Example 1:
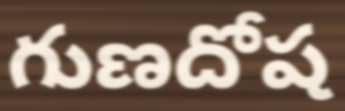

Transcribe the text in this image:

గుణదోష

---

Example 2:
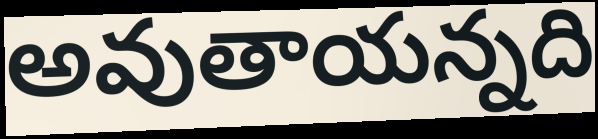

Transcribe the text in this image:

అవుతాయన్నది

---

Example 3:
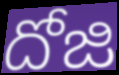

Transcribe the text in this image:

దోజి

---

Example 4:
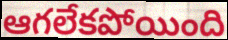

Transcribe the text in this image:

ఆగలేకపోయింది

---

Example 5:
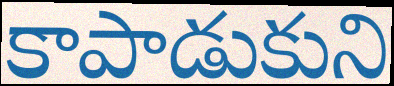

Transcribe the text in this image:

కాపాడుకుని